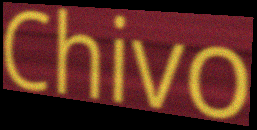
Chivo